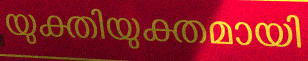
യുക്തിയുക്തമായി